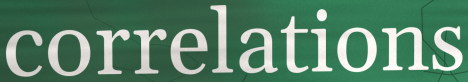
correlations